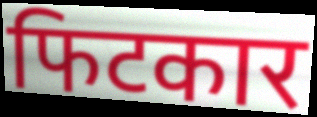
फिटकार